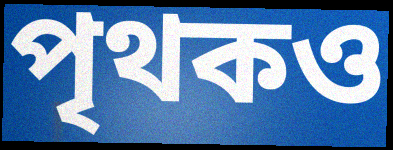
পৃথকও